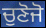
ਚੁਣੋਜੋ